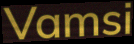
Vamsi